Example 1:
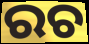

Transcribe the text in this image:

ରଚ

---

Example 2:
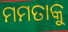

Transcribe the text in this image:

ମମତାକୁ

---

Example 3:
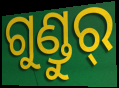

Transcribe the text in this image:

ଗୁଣ୍ଡୁର୍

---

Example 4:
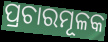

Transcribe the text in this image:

ପ୍ରଚାରମୂଳକ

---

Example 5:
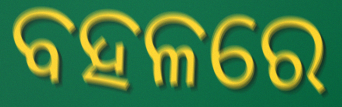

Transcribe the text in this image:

ବହଳରେ